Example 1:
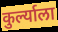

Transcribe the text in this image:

कुर्ल्याला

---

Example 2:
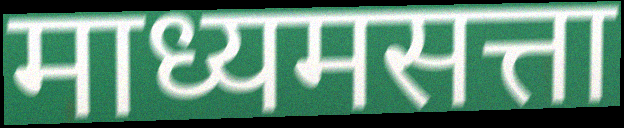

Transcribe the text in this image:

माध्यमसत्ता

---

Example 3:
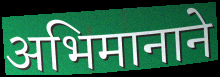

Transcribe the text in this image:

अभिमानाने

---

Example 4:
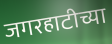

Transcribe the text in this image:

जगरहाटीच्या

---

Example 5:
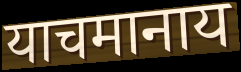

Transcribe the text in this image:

याचमानाय